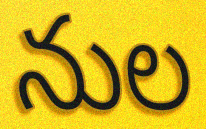
నుల